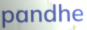
pandhe